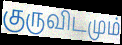
குருவிடமும்